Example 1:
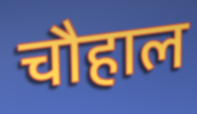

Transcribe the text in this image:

चौहाल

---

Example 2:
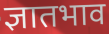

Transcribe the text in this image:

ज्ञातभाव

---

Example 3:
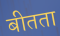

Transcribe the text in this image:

बीतता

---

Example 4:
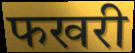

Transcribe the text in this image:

फखरी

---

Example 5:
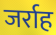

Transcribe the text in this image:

जर्राह